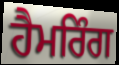
ਹੈਮਰਿੰਗ